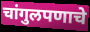
चांगुलपणाचे